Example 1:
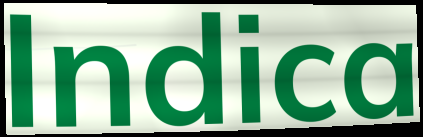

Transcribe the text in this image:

Indica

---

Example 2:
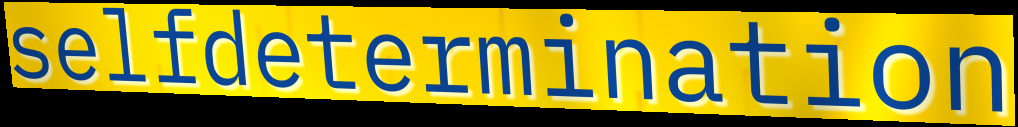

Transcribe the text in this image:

selfdetermination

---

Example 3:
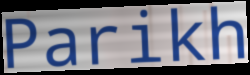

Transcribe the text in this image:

Parikh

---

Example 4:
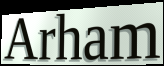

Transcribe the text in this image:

Arham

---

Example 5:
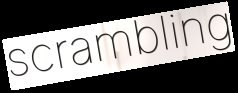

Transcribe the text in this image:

scrambling